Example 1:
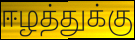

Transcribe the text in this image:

ஈழத்துக்கு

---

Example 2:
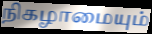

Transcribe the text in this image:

நிகழாமையும்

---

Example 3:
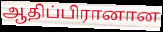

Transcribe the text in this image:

ஆதிப்பிரானான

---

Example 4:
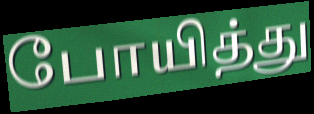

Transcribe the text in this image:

போயித்து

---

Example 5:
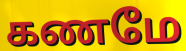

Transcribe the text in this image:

கணமே